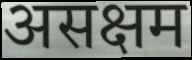
असक्षम